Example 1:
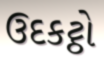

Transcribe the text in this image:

ઉદકટ્ઠો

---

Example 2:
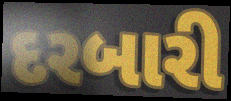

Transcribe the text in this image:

દરબારી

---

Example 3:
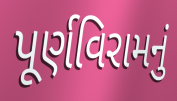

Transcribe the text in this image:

પૂર્ણવિરામનું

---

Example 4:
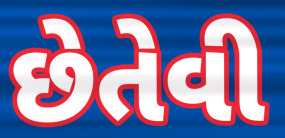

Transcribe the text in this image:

છેતેવી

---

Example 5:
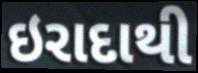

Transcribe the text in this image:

ઇરાદાથી